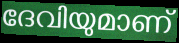
ദേവിയുമാണ്